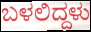
ಬಳಲಿದ್ದಳು